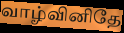
வாழ்வினிதே